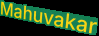
Mahuvakar